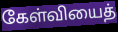
கேள்வியைத்